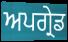
ਅਪਗ੍ਰੇਡ